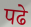
पढे